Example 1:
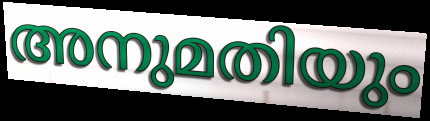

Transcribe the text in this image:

അനുമതിയും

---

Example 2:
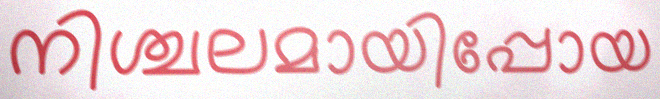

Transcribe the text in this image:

നിശ്ചലമായിപ്പോയ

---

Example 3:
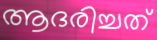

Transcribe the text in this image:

ആദരിച്ചത്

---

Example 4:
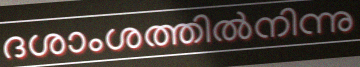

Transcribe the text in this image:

ദശാംശത്തിൽനിന്നു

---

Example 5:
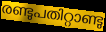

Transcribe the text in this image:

രണ്ടുപതിറ്റാണ്ടു